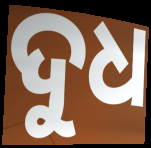
ଦୁଧ